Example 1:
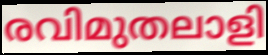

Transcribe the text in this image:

രവിമുതലാളി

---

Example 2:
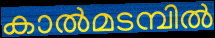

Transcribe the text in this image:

കാൽമടമ്പിൽ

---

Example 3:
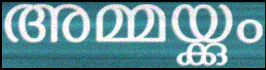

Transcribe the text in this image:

അമ്മയ്ക്കും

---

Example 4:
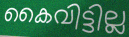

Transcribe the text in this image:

കൈവിട്ടില്ല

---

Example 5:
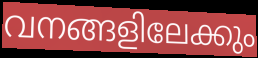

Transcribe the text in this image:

വനങ്ങളിലേക്കും